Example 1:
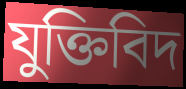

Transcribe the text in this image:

যুক্তিবিদ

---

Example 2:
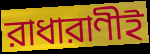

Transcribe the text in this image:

রাধারাণীই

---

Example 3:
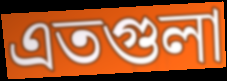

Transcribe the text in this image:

এতগুলা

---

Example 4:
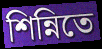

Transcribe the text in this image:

শিন্নিতে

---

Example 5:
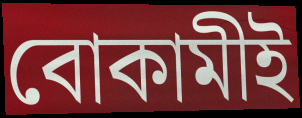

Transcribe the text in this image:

বোকামীই